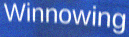
Winnowing